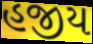
હજીય